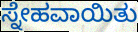
ಸ್ನೇಹವಾಯಿತು